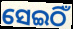
ସେଇଠିଁ